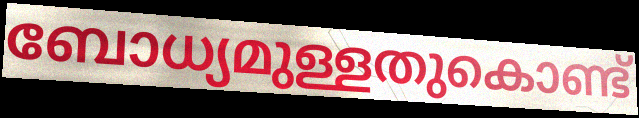
ബോധ്യമുള്ളതുകൊണ്ട്